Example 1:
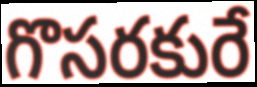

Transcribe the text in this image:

గొసరకురే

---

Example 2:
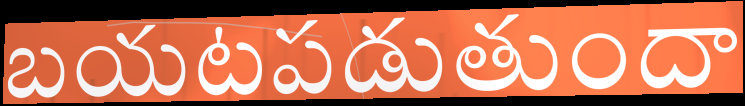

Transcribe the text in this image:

బయటపడుతుందా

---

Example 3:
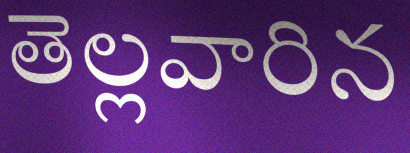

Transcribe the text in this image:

తెల్లవారిన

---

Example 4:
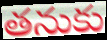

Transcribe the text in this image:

తనుకు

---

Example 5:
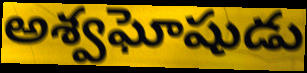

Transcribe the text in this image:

అశ్వఘోషుడు